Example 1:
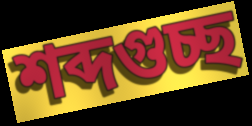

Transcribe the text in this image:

শব্দগুচ্ছ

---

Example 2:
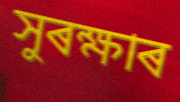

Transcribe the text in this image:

সুৰক্ষাৰ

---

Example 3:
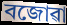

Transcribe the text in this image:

বজোৱা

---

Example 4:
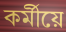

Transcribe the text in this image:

কৰ্মীয়ে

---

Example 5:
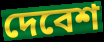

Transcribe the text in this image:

দেবেশ